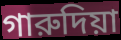
গারুদিয়া